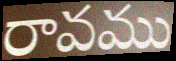
రావము